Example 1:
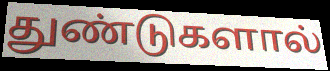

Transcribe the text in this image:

துண்டுகளால்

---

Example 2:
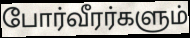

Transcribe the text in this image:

போர்வீரர்களும்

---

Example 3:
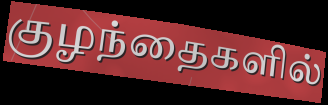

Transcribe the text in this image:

குழந்தைகளில்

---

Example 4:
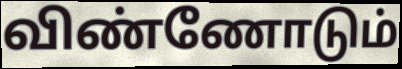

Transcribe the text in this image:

விண்ணோடும்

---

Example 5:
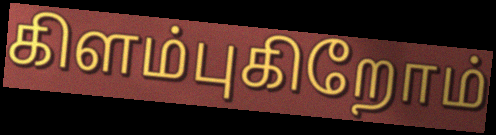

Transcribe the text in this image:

கிளம்புகிறோம்